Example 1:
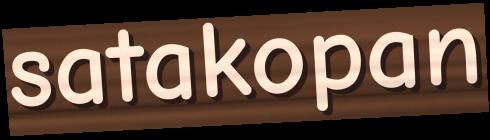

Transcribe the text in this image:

satakopan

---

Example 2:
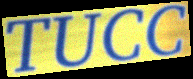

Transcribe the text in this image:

TUCC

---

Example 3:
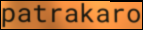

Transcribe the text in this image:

patrakaro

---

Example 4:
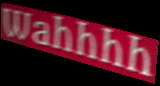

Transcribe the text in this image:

Wahhhh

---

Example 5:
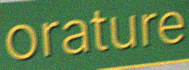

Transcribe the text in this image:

orature